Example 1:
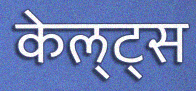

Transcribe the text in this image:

केल्ट्स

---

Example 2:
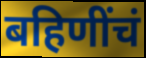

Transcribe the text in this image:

बहिणींचं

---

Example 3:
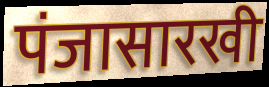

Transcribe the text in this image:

पंजासारखी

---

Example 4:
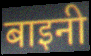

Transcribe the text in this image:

बाइनी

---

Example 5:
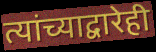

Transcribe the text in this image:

त्यांच्याद्वारेही